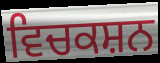
ਵਿਚਕਸ਼ਨ